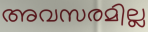
അവസരമില്ല